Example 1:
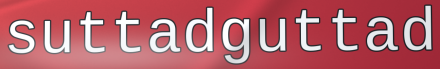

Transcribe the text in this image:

suttadguttad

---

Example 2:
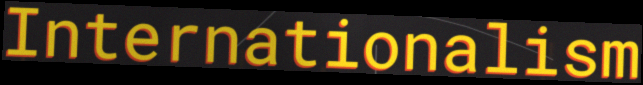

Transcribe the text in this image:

Internationalism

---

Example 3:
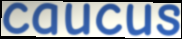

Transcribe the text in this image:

caucus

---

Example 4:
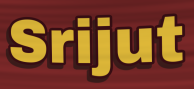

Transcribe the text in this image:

Srijut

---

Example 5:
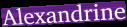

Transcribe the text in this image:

Alexandrine